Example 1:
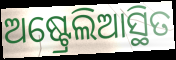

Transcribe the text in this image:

ଅଷ୍ଟ୍ରେଲିଆସ୍ଥିତ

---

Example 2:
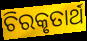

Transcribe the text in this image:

ଚିରକୃତାର୍ଥ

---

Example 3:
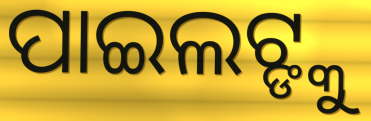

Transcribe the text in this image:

ପାଇଲଟ୍ଙ୍କୁ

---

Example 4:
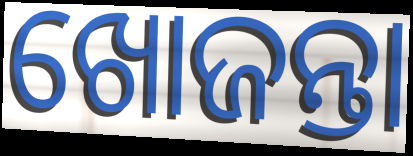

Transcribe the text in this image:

ଖୋଜନ୍ତା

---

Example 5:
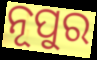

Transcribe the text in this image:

ନୂପୁର